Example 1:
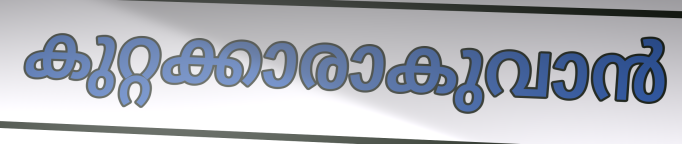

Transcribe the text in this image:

കുറ്റക്കാരാകുവാൻ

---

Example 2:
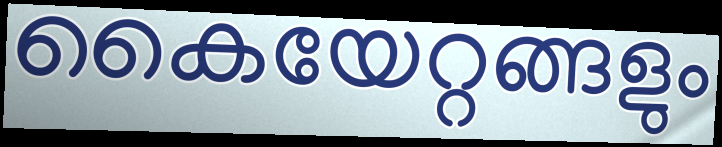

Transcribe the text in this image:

കൈയേറ്റങ്ങളും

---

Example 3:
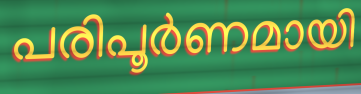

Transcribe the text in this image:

പരിപൂർണമായി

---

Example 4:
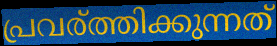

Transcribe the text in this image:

പ്രവര്ത്തിക്കുന്നത്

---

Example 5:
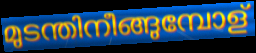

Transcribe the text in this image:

മുടന്തിനീങ്ങുമ്പോള്